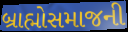
બ્રાહ્મોસમાજની